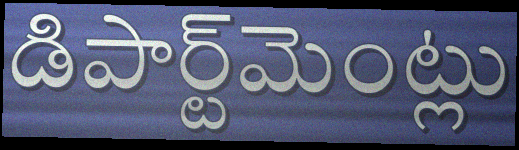
డిపార్ట్‌మెంట్లు